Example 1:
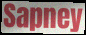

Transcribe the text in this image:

Sapney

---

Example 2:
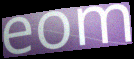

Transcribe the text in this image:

eom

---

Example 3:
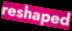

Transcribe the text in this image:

reshaped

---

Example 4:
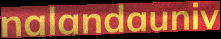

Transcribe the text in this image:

nalandauniv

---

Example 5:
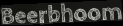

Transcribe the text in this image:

Beerbhoom